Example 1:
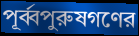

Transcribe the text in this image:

পূর্ব্বপুরুষগণের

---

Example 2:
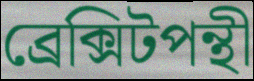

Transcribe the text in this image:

ব্রেক্সিটপন্থী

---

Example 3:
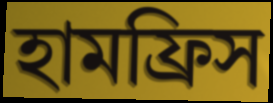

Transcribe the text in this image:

হামফ্রিস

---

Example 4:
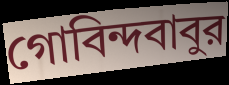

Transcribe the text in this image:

গোবিন্দবাবুর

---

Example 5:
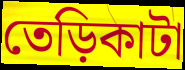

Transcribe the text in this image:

তেড়িকাটা